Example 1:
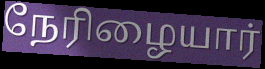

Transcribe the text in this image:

நேரிழையார்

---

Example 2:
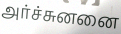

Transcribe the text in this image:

அர்ச்சுனனை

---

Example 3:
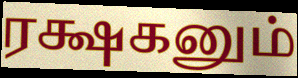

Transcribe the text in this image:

ரக்ஷகனும்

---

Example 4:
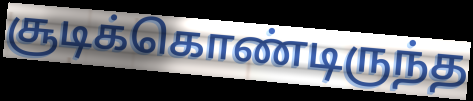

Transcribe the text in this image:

சூடிக்கொண்டிருந்த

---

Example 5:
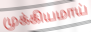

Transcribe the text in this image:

முக்கியமாய்